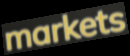
markets